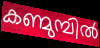
കണ്മുമ്പിൽ